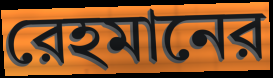
রেহমানের